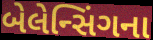
બેલેન્સિંગના